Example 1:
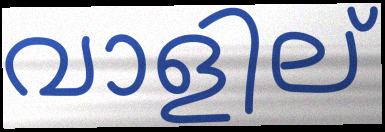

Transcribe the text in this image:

വാളില്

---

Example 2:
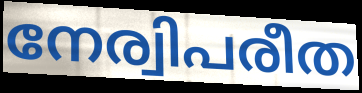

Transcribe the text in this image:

നേര്വിപരീത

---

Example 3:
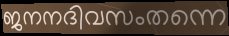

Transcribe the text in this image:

ജനനദിവസംതന്നെ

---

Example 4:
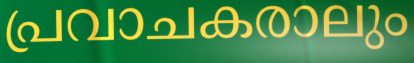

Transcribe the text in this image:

പ്രവാചകരാലും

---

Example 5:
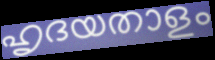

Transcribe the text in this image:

ഹൃദയതാളം